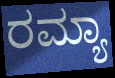
ರಮ್ಯಾ